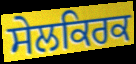
ਸੇਲਕਿਰਕ